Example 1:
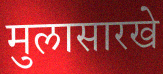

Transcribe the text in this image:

मुलासारखे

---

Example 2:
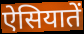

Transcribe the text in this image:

ऐसियातें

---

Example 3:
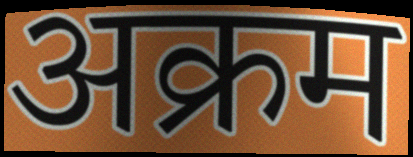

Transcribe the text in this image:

अक्रम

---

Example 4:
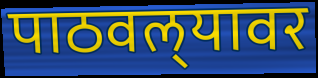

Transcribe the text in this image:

पाठवल्यावर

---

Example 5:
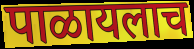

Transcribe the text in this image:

पाळायलाच